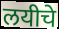
लयीचे